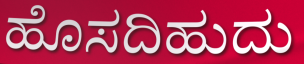
ಹೊಸದಿಹುದು